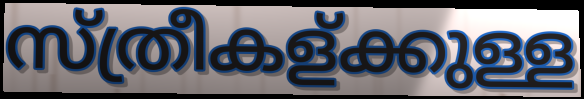
സ്ത്രീകള്ക്കുള്ള